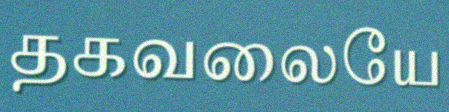
தகவலையே